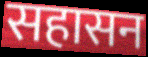
सहासन